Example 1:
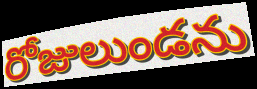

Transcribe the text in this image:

రోజులుండను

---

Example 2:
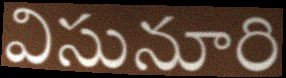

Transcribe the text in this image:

విసునూరి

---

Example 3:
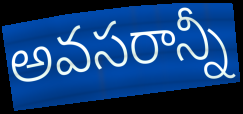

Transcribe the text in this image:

అవసరాన్నీ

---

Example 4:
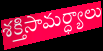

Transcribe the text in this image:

శక్తిసామర్ధ్యాలు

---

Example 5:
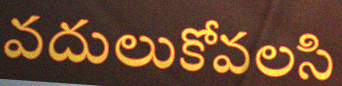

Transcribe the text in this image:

వదులుకోవలసి